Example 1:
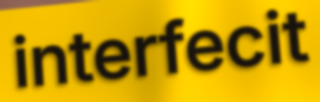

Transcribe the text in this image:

interfecit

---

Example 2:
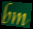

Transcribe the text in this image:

bm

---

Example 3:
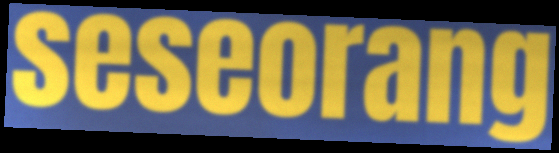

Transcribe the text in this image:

seseorang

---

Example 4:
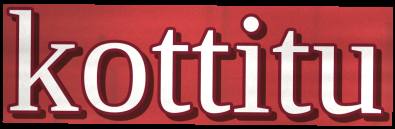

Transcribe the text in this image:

kottitu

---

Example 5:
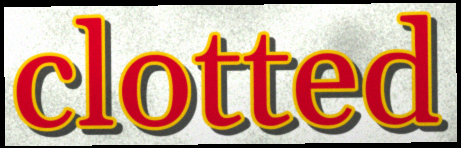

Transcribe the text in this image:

clotted